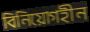
বিনিয়োগহীন